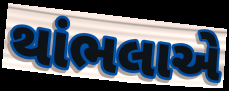
થાંભલાએ